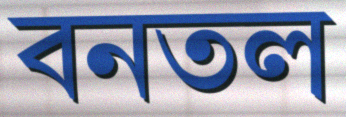
বনতল